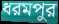
ধরমপুর